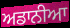
ਅਡਾਨੀਆ